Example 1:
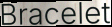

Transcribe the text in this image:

Bracelet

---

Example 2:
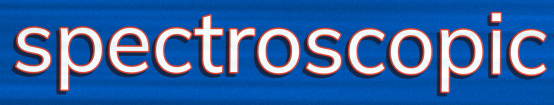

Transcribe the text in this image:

spectroscopic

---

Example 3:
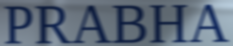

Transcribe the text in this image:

PRABHA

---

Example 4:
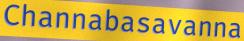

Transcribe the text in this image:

Channabasavanna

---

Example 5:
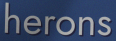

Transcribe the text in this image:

herons